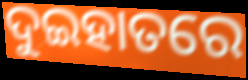
ଦୁଇହାତରେ